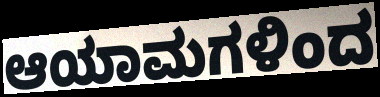
ಆಯಾಮಗಳಿಂದ